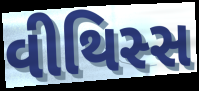
વીથિસ્સ